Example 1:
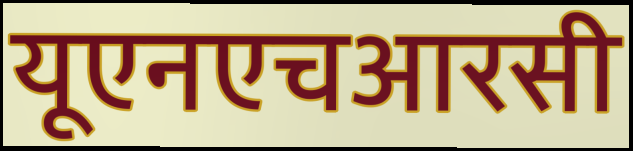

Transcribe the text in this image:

यूएनएचआरसी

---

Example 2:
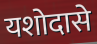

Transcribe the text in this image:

यशोदासे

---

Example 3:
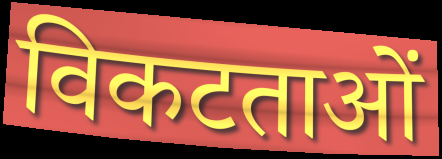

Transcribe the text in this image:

विकटताओं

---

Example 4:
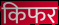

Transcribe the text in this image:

किफर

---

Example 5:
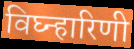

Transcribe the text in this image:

विघ्न्हारिणी